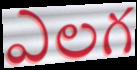
ఎలగ